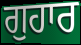
ਗੁਹਾਰ